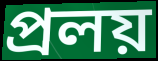
প্ৰলয়